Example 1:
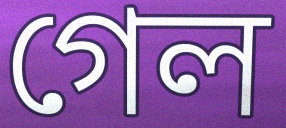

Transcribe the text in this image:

গেল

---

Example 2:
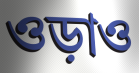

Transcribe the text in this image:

ওড়াও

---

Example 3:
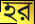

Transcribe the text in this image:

হর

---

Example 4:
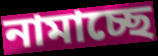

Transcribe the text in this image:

নামাচ্ছে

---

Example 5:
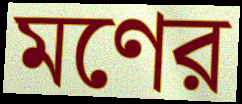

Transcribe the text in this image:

মণের